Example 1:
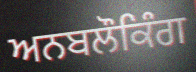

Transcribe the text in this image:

ਅਨਬਲੌਕਿੰਗ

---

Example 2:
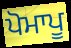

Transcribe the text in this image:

ਪੋਮਾਪੂ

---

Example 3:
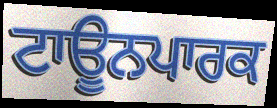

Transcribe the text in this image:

ਟਾਊਨਪਾਰਕ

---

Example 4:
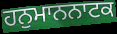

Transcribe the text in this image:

ਹਨੁਮਾਨਨਾਟਕ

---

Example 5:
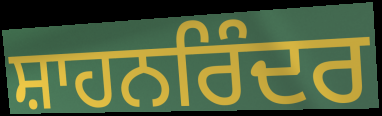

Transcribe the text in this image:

ਸ਼ਾਹਨਰਿੰਦਰ